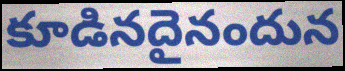
కూడినదైనందున